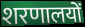
शरणालयों